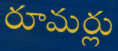
రూమర్లు